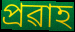
প্ৰৱাহ